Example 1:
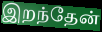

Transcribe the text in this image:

இறந்தேன்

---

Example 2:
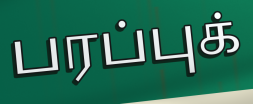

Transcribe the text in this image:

பரப்புக்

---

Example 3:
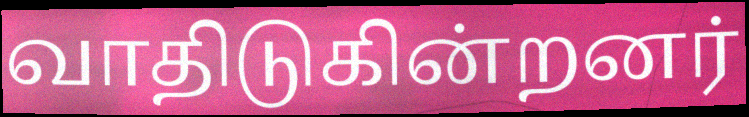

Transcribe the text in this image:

வாதிடுகின்றனர்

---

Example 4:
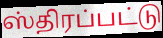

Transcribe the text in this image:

ஸ்திரப்பட்டு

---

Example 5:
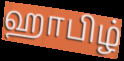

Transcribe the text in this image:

ஹாபிழ்